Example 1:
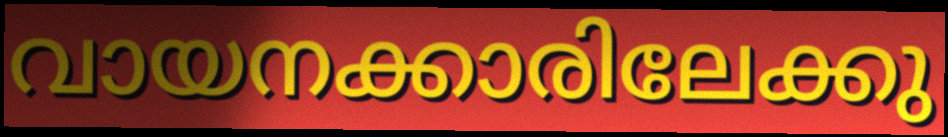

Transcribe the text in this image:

വായനക്കാരിലേക്കു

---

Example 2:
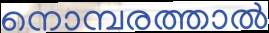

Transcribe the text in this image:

നൊമ്പരത്താൽ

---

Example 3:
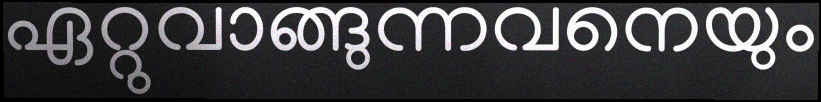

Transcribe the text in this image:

ഏറ്റുവാങ്ങുന്നവനെയും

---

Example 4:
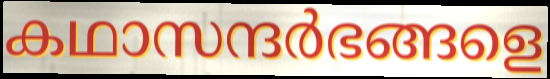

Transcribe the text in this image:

കഥാസന്ദർഭങ്ങളെ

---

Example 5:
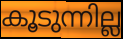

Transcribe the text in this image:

കൂടുന്നില്ല